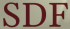
SDF